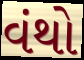
વંથો